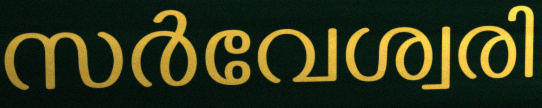
സർവേശ്വരി